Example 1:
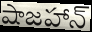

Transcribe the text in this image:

షాజహాన్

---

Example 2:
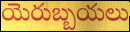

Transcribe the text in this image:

యెరుబ్బయలు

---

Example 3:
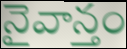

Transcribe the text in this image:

నైవాన్తం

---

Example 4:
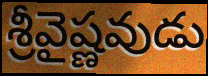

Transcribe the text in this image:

శ్రీవైష్ణవుడు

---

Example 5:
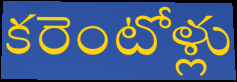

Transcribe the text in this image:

కరెంటోళ్లు